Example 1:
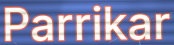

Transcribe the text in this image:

Parrikar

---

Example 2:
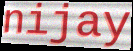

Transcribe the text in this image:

nijay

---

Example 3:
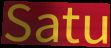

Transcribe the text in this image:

Satu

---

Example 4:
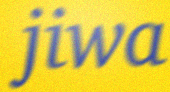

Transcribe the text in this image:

jiwa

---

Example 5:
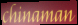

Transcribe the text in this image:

chinaman